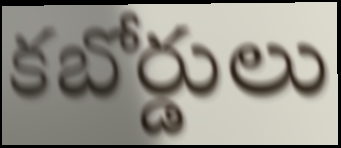
కబోర్డులు